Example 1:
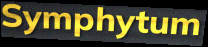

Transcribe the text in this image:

Symphytum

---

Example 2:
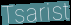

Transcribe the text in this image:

Tsarist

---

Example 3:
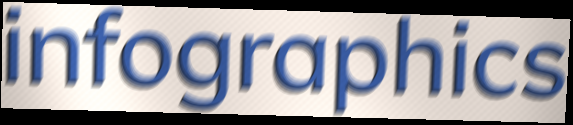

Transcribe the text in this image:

infographics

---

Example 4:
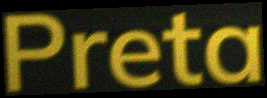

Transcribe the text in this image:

Preta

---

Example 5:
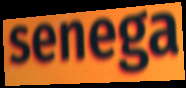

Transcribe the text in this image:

senega